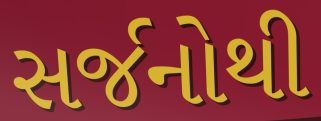
સર્જનોથી